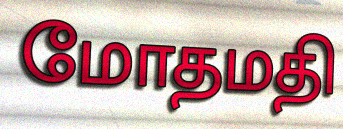
மோதமதி